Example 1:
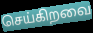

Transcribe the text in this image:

செய்கிறவை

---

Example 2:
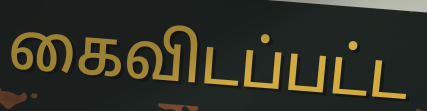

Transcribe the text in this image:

கைவிடப்பட்ட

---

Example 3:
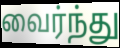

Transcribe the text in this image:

வைர்ந்து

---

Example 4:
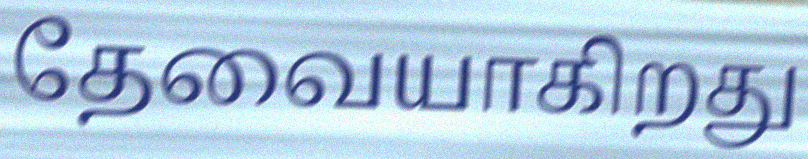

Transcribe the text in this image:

தேவையாகிறது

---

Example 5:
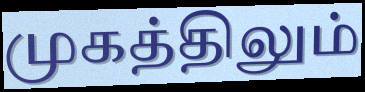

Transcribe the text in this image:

முகத்திலும்